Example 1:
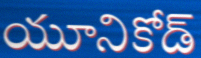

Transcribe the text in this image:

యూనికోడ్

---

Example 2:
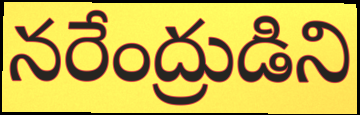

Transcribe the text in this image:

నరేంద్రుడిని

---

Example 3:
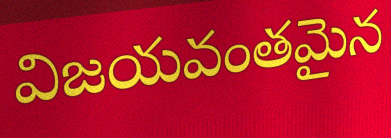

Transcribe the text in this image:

విజయవంతమైన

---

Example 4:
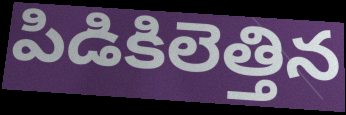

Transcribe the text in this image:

పిడికిలెత్తిన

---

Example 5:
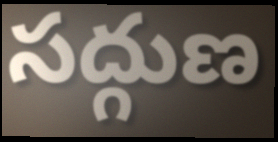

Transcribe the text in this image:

సద్గుణ